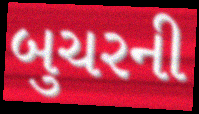
બુચરની